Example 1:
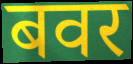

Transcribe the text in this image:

बवर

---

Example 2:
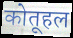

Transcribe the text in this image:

कोतूहल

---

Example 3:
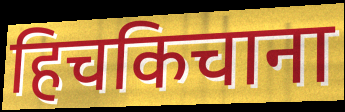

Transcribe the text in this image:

हिचकिचाना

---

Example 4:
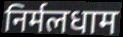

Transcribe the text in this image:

निर्मलधाम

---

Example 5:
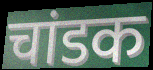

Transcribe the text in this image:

चांडक